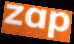
zap